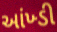
આંખ્ડી